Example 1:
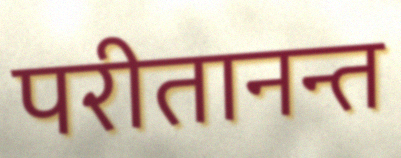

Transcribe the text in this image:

परीतानन्त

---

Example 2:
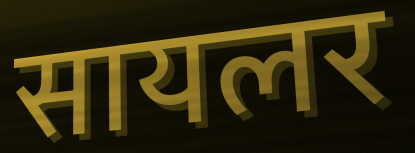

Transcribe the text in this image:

सायलर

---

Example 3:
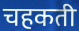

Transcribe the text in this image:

चहकती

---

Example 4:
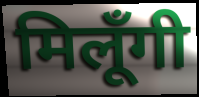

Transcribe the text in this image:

मिलूँगी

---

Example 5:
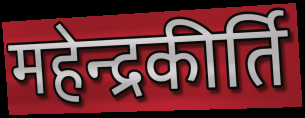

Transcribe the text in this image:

महेन्द्रकीर्ति